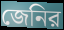
জেনির